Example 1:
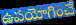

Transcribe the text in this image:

ఉపయోగించే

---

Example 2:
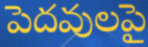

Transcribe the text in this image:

పెదవులపై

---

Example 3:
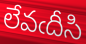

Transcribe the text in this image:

లేవఁదీసి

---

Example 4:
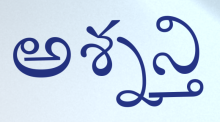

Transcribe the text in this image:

అశ్నన్తి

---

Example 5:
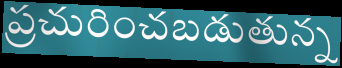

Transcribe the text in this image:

ప్రచురించబడుతున్న